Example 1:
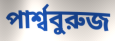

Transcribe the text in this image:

পার্শ্ববুরুজ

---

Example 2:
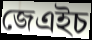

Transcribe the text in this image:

জেএইচ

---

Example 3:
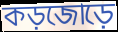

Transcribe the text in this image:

কড়জোড়ে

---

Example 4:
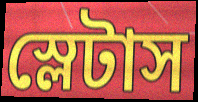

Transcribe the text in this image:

স্লেটাস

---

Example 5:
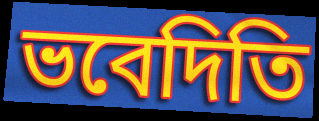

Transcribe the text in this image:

ভবেদিতি